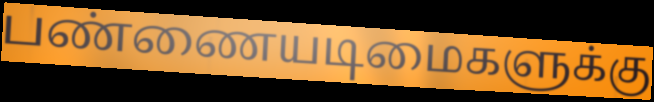
பண்ணையடிமைகளுக்கு